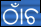
ଠାଁଚ